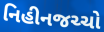
નિહીનજચ્ચો